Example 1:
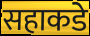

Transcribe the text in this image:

सहाकडे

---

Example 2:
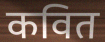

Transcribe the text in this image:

कवित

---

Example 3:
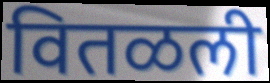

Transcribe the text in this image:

वितळली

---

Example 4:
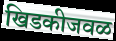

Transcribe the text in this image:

खिडकीजवळ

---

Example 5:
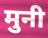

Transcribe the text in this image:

मुनी